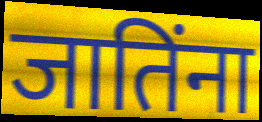
जातिंना